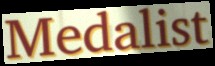
Medalist